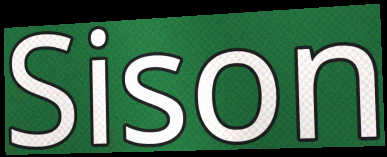
Sison